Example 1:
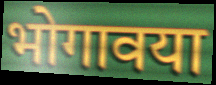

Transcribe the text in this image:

भोगावया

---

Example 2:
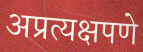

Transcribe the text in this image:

अप्रत्यक्षपणे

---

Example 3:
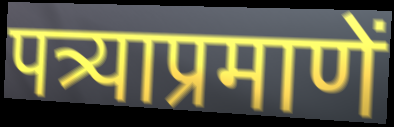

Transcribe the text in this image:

पत्र्याप्रमाणें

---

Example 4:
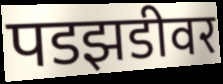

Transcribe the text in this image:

पडझडीवर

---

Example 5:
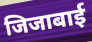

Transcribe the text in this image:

जिजाबाई